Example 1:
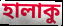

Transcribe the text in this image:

হালাকু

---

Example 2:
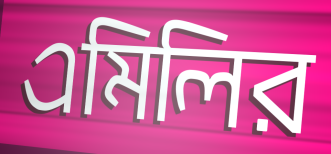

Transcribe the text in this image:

এমিলির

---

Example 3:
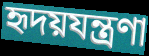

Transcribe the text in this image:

হৃদয়যন্ত্রণা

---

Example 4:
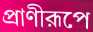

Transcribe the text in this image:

প্রাণীরূপে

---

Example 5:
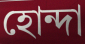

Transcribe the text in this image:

হোন্দা